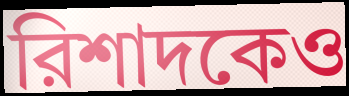
রিশাদকেও